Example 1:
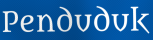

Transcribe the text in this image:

Penduduk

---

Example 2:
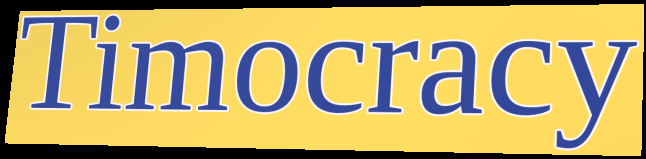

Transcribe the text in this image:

Timocracy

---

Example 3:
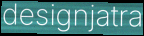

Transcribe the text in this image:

designjatra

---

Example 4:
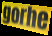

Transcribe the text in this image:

gorhe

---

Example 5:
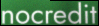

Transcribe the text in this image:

nocredit